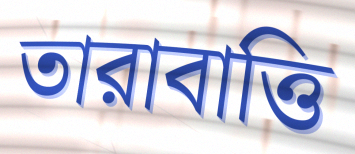
তারাবাত্তি